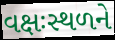
વક્ષઃસ્થળને